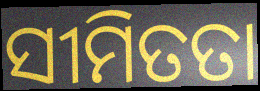
ସୀମିତତା